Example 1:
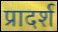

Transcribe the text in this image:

प्रादर्श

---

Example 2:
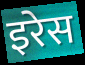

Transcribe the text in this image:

इरेस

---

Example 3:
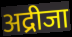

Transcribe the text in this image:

अद्रीजा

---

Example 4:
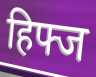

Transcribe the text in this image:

हिफ्ज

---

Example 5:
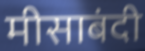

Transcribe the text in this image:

मीसाबंदी